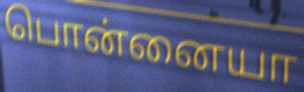
பொன்னையா